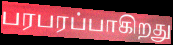
பரபரப்பாகிறது